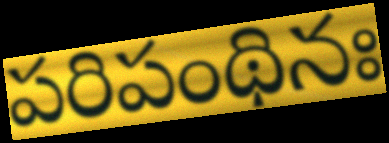
పరిపంథినః